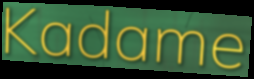
Kadame